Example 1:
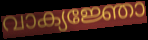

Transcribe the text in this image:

വാക്യജ്ഞോ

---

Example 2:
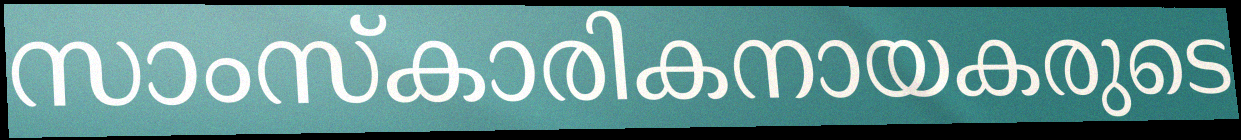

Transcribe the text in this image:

സാംസ്കാരികനായകരുടെ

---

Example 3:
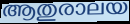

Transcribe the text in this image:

ആതുരാലയ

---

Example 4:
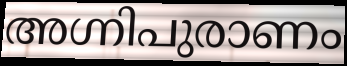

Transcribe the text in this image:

അഗ്നിപുരാണം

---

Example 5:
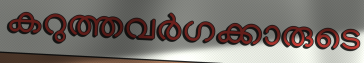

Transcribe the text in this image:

കറുത്തവർഗക്കാരുടെ